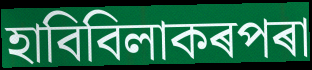
হাবিবিলাকৰপৰা